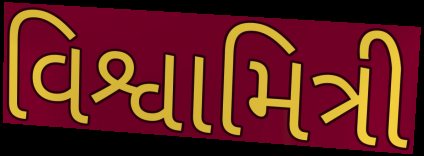
વિશ્વામિત્રી